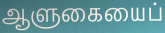
ஆளுகையைப்